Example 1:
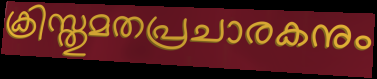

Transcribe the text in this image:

ക്രിസ്തുമതപ്രചാരകനും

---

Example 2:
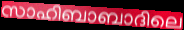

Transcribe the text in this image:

സാഹിബാബാദിലെ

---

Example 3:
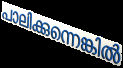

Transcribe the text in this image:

പാലിക്കുന്നെങ്കിൽ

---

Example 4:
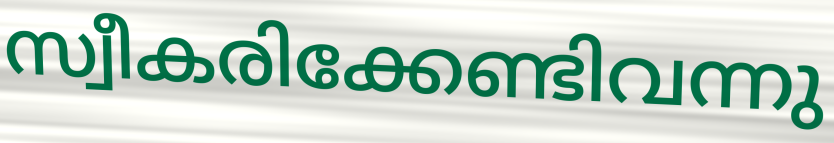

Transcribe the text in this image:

സ്വീകരിക്കേണ്ടിവന്നു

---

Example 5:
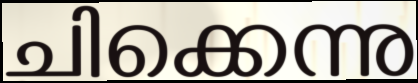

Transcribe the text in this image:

ചിക്കെന്നു